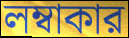
লম্বাকার